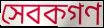
সেবকগণ